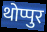
थोप्पुर